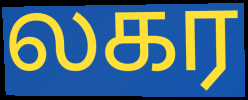
லகர